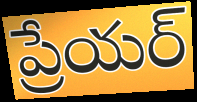
ప్రేయర్